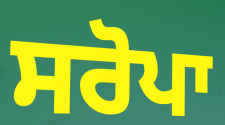
ਸਰੋਪਾ